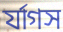
র্যাগস